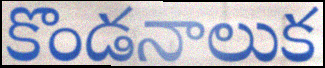
కొండనాలుక